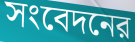
সংবেদনের